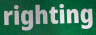
righting